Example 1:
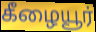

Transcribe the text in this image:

கீழையூர்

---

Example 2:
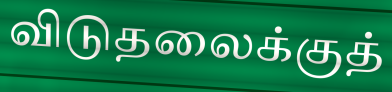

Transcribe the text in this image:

விடுதலைக்குத்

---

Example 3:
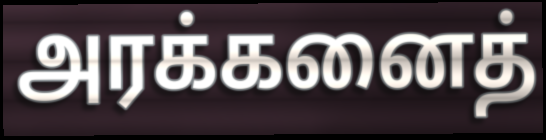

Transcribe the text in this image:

அரக்கனைத்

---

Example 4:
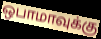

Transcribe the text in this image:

ஒபாமாவுக்கு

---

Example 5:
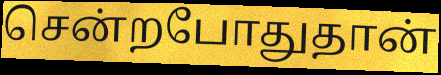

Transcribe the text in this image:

சென்றபோதுதான்